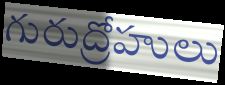
గురుద్రోహులు